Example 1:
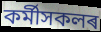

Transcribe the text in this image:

কৰ্মীসকলৰ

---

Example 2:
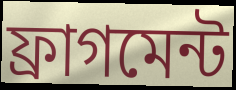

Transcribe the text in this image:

ফ্ৰাগমেন্ট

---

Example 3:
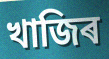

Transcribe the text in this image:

খাজিৰ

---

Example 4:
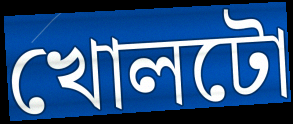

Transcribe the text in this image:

খোলটো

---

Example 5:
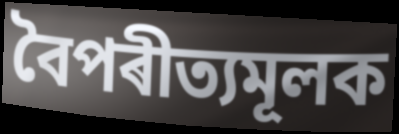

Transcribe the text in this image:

বৈপৰীত্যমূলক